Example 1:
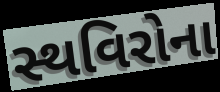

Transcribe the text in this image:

સ્થવિરોના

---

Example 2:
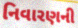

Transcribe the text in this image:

નિવારણની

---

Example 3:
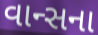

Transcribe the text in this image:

વાન્સના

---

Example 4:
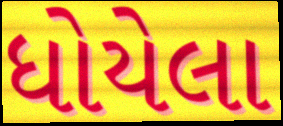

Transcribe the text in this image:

ધોયેલા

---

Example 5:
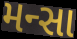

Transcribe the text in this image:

મન્સા